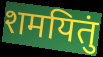
शमयितुं